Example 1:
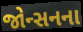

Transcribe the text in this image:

જોન્સનના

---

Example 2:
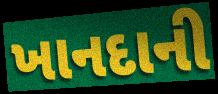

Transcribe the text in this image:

ખાનદાની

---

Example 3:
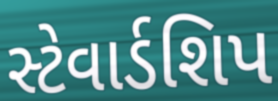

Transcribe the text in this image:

સ્ટેવાર્ડશિપ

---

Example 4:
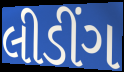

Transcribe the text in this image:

લીડીંગ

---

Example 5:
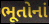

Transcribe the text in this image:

ભૂતોનાં